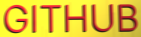
GITHUB